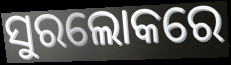
ସୁରଲୋକରେ